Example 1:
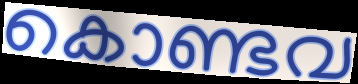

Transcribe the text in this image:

കൊണ്ടവ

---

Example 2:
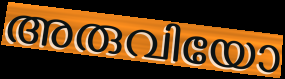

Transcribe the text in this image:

അരുവിയോ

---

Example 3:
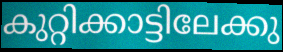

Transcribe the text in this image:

കുറ്റിക്കാട്ടിലേക്കു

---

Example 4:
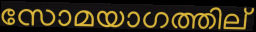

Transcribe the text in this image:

സോമയാഗത്തില്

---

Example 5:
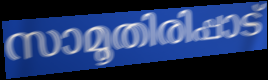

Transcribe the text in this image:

സാമൂതിരിപ്പാട്